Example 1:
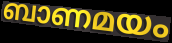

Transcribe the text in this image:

ബാണമയം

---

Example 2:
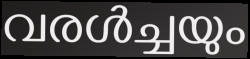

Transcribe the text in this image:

വരൾച്ചയും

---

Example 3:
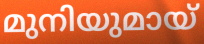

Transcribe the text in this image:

മുനിയുമായ്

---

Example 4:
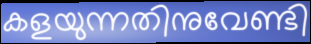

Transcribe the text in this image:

കളയുന്നതിനുവേണ്ടി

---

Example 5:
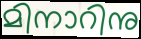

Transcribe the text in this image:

മിനാറിനു